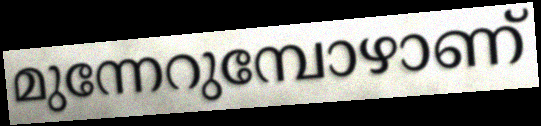
മുന്നേറുമ്പോഴാണ്